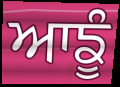
ਆਙੂੰ